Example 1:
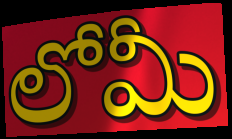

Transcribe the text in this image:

లోమీ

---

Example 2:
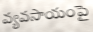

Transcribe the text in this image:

వ్యవసాయంపై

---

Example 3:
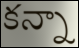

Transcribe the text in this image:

కన్నా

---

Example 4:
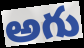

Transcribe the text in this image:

అగు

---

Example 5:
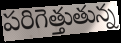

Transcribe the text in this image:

పరిగెత్తుతున్న